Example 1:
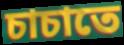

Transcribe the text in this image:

চাচাতে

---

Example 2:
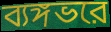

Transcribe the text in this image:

ব্যঙ্গভরে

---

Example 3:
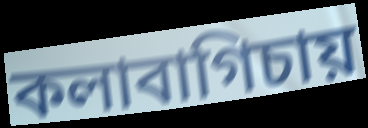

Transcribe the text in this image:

কলাবাগিচায়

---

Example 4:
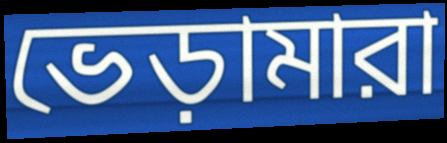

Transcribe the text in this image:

ভেড়ামারা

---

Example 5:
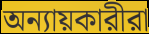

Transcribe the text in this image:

অন্যায়কারীরা